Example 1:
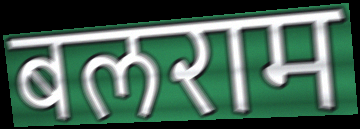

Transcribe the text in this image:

बलराम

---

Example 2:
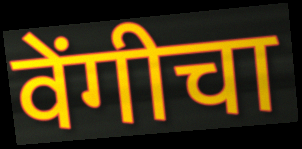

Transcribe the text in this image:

वेंगीचा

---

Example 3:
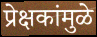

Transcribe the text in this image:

प्रेक्षकांमुळे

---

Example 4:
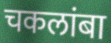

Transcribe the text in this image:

चकलांबा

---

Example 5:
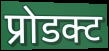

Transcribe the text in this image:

प्रोडक्ट